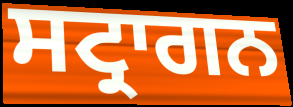
ਸਟ੍ਰਾਗਨ